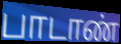
பாடாண்